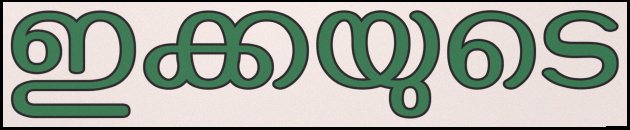
ഇക്കയുടെ